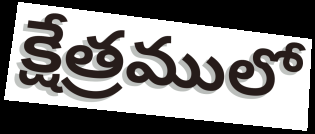
క్షేత్రములో